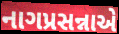
નાગપ્રસન્નાએ